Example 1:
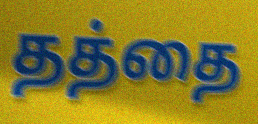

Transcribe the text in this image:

தத்தை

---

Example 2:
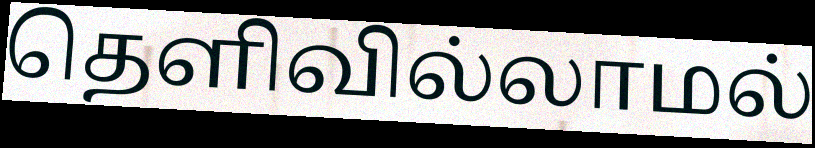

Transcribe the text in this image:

தெளிவில்லாமல்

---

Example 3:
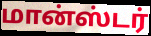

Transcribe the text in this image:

மான்ஸ்டர்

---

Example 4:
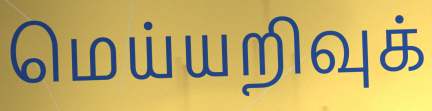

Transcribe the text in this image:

மெய்யறிவுக்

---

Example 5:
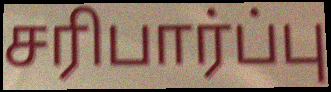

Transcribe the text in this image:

சரிபார்ப்பு